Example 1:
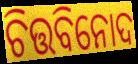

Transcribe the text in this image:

ଚିତ୍ତବିନୋଦ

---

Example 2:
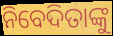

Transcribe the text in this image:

ନିବେଦିତାଙ୍କୁ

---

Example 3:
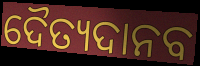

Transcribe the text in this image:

ଦୈତ୍ୟଦାନବ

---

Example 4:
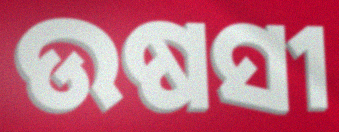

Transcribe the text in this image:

ଉଷସୀ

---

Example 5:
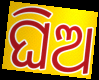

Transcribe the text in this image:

ଘିଅ